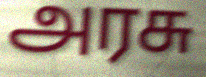
அரசு